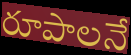
రూపాలనే